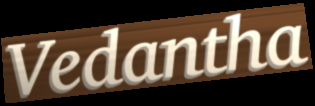
Vedantha